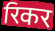
रिकर